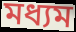
মধ্যম